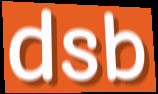
dsb